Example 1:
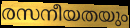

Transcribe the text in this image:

രസനീയതയും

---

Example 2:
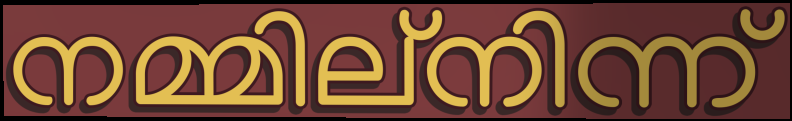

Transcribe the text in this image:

നമ്മില്നിന്ന്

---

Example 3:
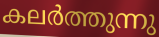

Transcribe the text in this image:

കലർത്തുന്നു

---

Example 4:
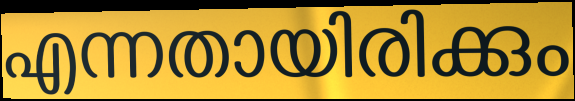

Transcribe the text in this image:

എന്നതായിരിക്കും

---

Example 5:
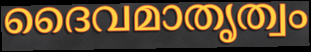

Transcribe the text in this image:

ദൈവമാതൃത്വം